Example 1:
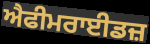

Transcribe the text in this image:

ਐਫੀਮਰਾਈਡਜ਼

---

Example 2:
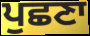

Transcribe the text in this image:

ਪੁਛਣਾ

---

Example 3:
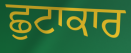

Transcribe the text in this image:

ਛੁਟਾਕਾਰ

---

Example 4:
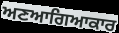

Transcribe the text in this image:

ਅਣਆਗਿਆਕਾਰ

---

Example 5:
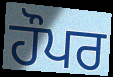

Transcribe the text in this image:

ਹੌਪਰ